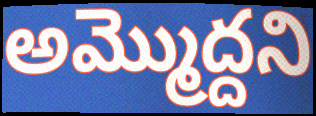
అమ్మొద్దని